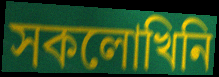
সকলোখিনি